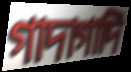
গাদাগাদি